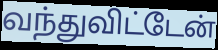
வந்துவிட்டேன்